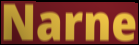
Narne